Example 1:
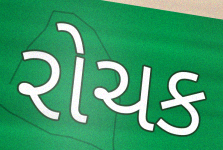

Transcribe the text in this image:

રોચક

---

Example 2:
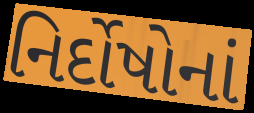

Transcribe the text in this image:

નિર્દોષોનાં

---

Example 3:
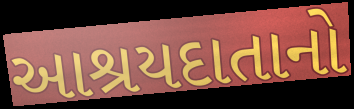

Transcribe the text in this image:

આશ્રયદાતાનો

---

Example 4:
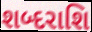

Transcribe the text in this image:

શબ્દરાશિ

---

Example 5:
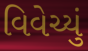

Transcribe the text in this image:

વિવેચ્યું